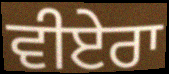
ਵੀਏਰਾ